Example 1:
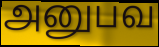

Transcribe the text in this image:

அனுபவ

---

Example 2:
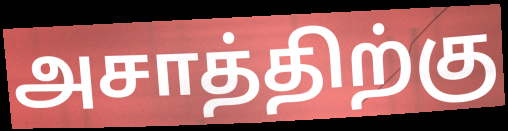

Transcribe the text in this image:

அசாத்திற்கு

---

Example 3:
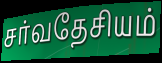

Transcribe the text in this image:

சர்வதேசியம்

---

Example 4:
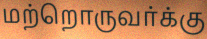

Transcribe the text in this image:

மற்றொருவர்க்கு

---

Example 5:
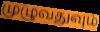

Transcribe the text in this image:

முழுவதுவும்